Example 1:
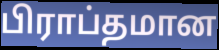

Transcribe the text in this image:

பிராப்தமான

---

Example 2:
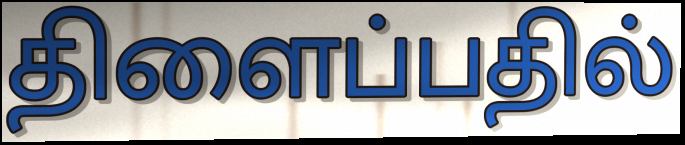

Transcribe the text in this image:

திளைப்பதில்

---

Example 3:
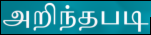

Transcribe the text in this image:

அறிந்தபடி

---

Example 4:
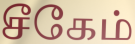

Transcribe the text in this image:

சீகேம்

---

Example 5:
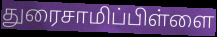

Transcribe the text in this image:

துரைசாமிப்பிள்ளை